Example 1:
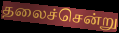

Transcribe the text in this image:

தலைச்சென்று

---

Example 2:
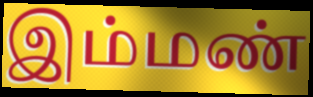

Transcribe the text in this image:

இம்மண்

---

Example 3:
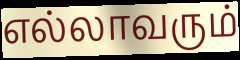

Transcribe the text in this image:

எல்லாவரும்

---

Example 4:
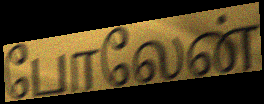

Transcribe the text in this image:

போலேன்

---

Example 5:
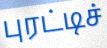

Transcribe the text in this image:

புரட்டிச்